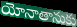
యోనాతానుకు